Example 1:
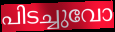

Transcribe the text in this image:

പിടച്ചുവോ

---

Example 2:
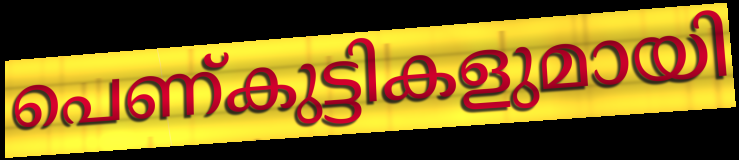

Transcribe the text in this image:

പെണ്കുട്ടികളുമായി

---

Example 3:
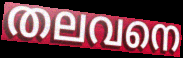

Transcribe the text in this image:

തലവനെ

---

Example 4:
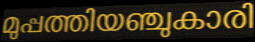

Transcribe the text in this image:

മുപ്പത്തിയഞ്ചുകാരി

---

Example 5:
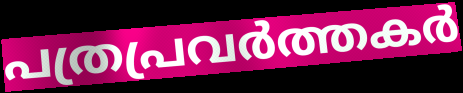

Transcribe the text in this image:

പത്രപ്രവർത്തകർ